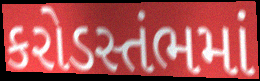
કરોડસ્તંભમાં